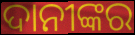
ଦାନୀଙ୍କର